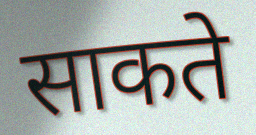
साकते